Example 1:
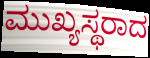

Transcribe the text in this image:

ಮುಖ್ಯಸ್ಥರಾದ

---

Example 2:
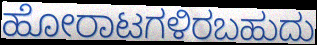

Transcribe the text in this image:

ಹೋರಾಟಗಳಿರಬಹುದು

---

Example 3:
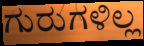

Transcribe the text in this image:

ಗುರುಗಳಿಲ್ಲ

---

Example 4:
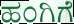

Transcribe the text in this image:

ಹಂಗಿಗೆ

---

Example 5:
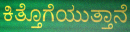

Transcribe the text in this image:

ಕಿತ್ತೊಗೆಯುತ್ತಾನೆ